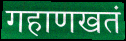
गहाणखतं